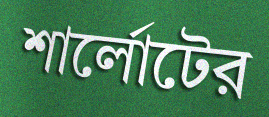
শার্লোটের